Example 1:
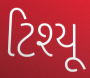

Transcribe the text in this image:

ટિશ્યૂ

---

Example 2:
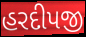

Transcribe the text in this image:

હરદીપજી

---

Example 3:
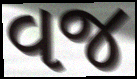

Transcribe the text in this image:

વજ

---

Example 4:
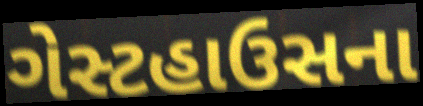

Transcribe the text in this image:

ગેસ્ટહાઉસના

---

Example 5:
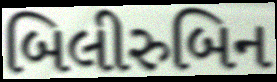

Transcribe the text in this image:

બિલીરુબિન